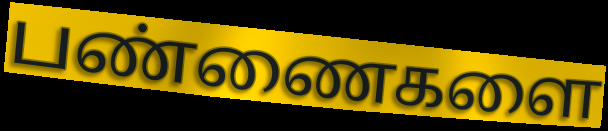
பண்ணைகளை